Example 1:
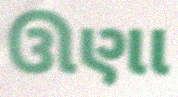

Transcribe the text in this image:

ઊણા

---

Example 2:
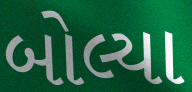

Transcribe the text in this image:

બોલ્યા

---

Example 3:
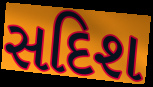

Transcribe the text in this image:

સદિશ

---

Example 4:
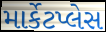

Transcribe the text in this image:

માર્કેટપ્લેસ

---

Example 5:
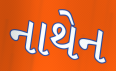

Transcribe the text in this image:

નાથેન